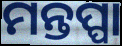
ମନ୍ତପ୍ପା